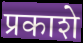
प्रकाशे